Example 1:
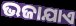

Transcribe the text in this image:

ଭଜାଯାଏ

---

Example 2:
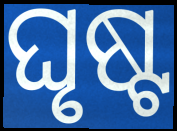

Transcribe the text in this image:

ଘୃଷ୍ଟ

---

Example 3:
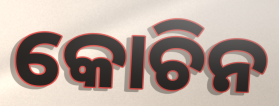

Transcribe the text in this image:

କୋଚିନ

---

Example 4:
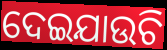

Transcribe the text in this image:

ଦେଇଯାଉଚି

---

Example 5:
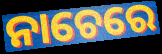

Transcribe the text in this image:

ନାଚେରେ